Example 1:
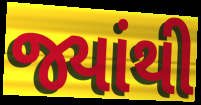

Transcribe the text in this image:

જ્યાંથી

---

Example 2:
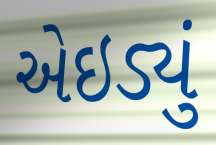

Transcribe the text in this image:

એઇડ્યું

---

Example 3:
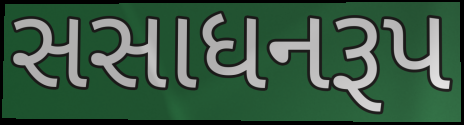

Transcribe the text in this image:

સસાધનરૂપ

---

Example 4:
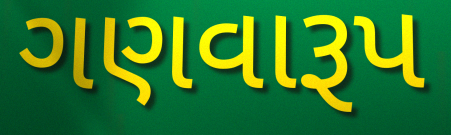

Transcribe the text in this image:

ગણવારૂપ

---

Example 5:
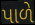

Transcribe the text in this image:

પાળે